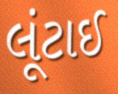
લૂંટાઈ